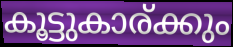
കൂട്ടുകാര്ക്കും